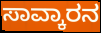
ಸಾವ್ಕಾರನ